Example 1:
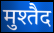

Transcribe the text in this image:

मुश्तैद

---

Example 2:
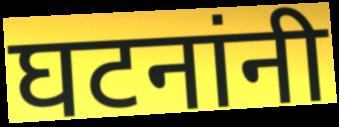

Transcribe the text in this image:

घटनांनी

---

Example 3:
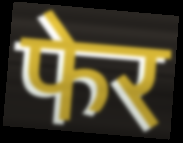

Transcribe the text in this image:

फेर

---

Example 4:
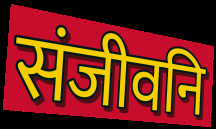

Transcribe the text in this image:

संजीवनि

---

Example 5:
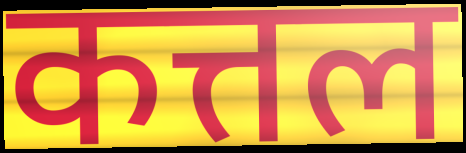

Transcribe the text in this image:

कत्तल